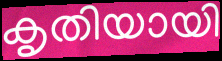
കൃതിയായി